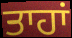
ਤਾਹਾਂ